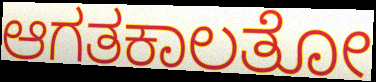
ಆಗತಕಾಲತೋ